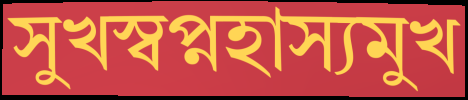
সুখস্বপ্নহাস্যমুখ